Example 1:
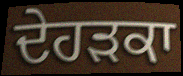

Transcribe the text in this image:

ਦੇਹੜਕਾ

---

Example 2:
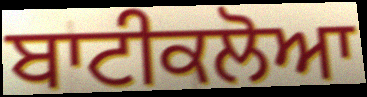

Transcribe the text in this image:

ਬਾਟੀਕਲੋਆ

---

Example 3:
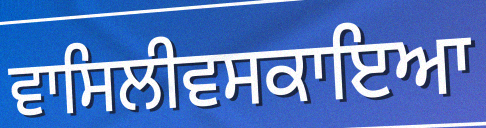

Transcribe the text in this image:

ਵਾਸਿਲੀਵਸਕਾਇਆ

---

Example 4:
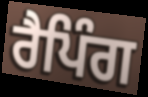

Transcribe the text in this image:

ਰੈਪਿੰਗ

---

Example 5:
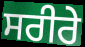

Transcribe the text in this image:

ਸਰੀਰੇ